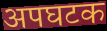
अपघटक